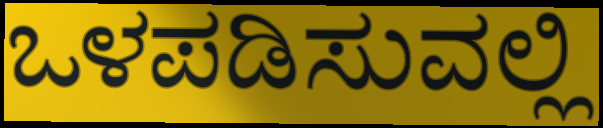
ಒಳಪಡಿಸುವಲ್ಲಿ